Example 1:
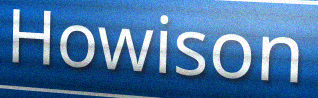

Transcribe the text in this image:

Howison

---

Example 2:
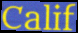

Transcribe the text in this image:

Calif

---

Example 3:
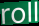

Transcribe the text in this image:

roll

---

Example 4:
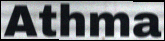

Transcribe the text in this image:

Athma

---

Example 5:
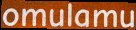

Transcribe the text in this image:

omulamu